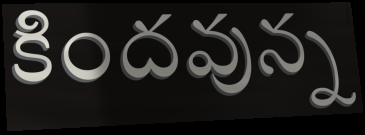
కిందవున్న